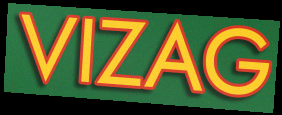
VIZAG